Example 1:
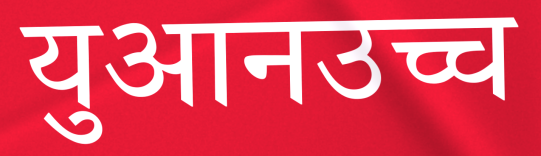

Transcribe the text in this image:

युआनउच्च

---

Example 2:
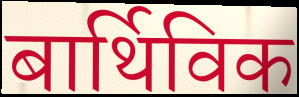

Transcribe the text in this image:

बार्थिविक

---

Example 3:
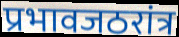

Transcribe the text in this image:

प्रभावजठरांत्र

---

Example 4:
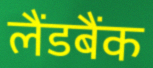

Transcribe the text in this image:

लैंडबैंक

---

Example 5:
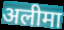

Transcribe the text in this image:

अलीमा